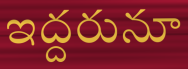
ఇద్దరునూ